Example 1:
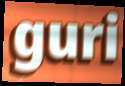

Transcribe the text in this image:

guri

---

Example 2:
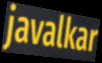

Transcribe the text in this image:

javalkar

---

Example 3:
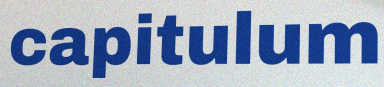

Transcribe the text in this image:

capitulum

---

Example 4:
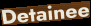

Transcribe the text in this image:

Detainee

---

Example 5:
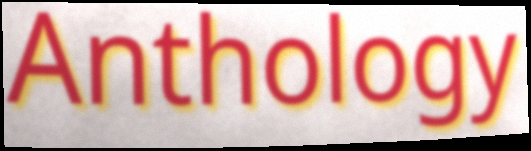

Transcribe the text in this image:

Anthology